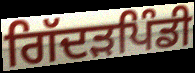
ਗਿੱਦੜਪਿੰਡੀ